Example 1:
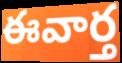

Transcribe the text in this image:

ఈవార్త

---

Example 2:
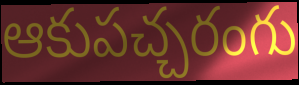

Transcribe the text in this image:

ఆకుపచ్చరంగు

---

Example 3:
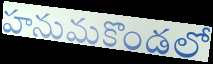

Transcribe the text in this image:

హనుమకొండలో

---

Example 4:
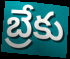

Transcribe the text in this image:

బ్రేకు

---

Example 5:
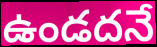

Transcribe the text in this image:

ఉండదనే